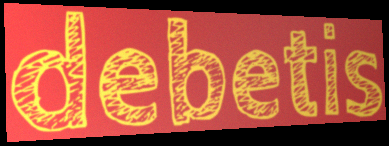
debetis